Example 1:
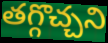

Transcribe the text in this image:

తగ్గొచ్చని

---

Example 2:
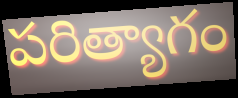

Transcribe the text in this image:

పరిత్యాగం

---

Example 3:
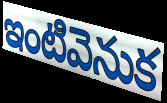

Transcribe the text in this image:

ఇంటివెనుక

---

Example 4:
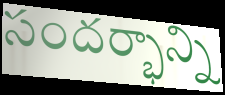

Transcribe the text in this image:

సందర్భాన్ని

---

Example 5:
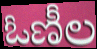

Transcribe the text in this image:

ఓణీల